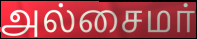
அல்சைமர்